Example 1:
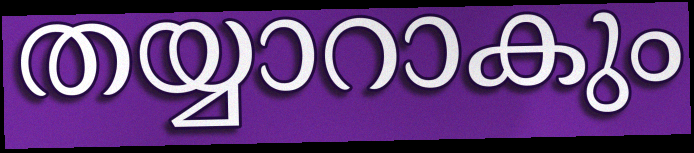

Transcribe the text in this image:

തയ്യാറാകും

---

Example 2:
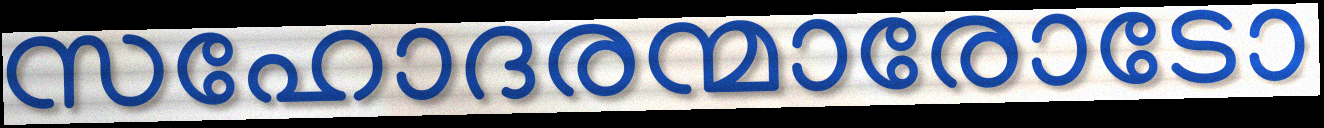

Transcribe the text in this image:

സഹോദരന്മാരോടോ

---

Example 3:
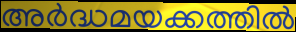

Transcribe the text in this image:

അർദ്ധമയക്കത്തിൽ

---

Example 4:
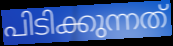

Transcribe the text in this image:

പിടിക്കുന്നത്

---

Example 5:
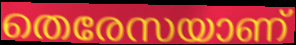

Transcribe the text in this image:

തെരേസയാണ്